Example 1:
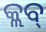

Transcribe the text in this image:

କ୍ଲବ୍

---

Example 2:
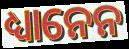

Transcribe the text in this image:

ଧ୍ୟାନେନ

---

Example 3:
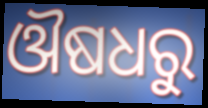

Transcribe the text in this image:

ଔଷଧରୁ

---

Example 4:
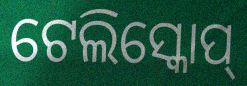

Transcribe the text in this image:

ଟେଲିସ୍କୋପ୍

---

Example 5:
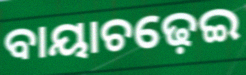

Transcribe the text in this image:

ବାୟାଚଢ଼େଇ